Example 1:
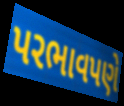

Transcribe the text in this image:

પરભાવપણે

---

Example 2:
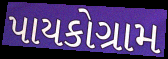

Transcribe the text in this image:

પાયકોગ્રામ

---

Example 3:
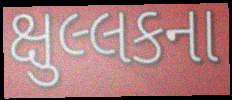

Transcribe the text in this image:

ક્ષુલ્લકના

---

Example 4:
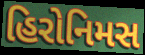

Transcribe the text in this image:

હિરોનિમસ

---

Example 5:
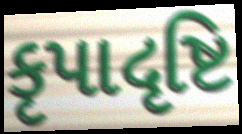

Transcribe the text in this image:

કૃપાદૃષ્ટિ